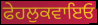
ਫੇਹਲੁਕਵਾਇਓ